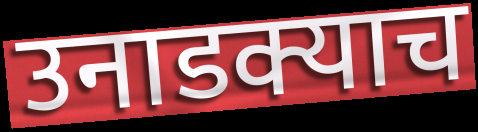
उनाडक्याच